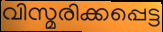
വിസ്മരിക്കപ്പെട്ട